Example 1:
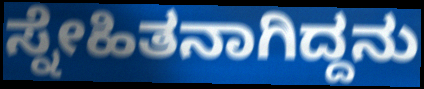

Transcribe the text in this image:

ಸ್ನೇಹಿತನಾಗಿದ್ದನು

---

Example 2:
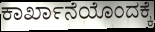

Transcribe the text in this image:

ಕಾರ್ಖಾನೆಯೊಂದಕ್ಕೆ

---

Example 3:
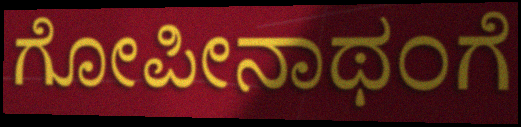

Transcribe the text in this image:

ಗೋಪೀನಾಥಂಗೆ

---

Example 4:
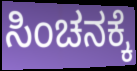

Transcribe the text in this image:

ಸಿಂಚನಕ್ಕೆ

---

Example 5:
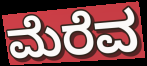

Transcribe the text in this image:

ಮೆರೆವ